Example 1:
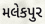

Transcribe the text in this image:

મલેકપુર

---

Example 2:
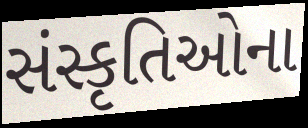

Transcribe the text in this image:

સંસ્કૃતિઓના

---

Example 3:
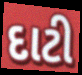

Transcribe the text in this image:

દાટી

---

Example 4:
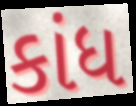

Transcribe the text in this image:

કાંધ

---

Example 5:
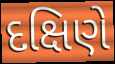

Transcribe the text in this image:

દક્ષિણે